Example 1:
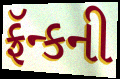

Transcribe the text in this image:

ફ્રૅન્કની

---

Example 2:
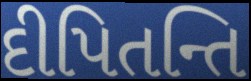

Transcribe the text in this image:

દીપિતન્તિ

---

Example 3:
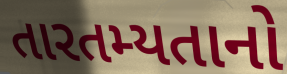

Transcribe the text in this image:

તારતમ્યતાનો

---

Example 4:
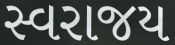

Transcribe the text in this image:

સ્વરાજય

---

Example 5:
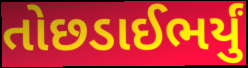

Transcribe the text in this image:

તોછડાઈભર્યું